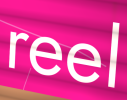
reel